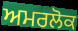
ਅਮਰਲੋਕ